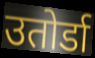
उतोर्डा